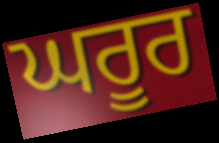
ਘਰੂਰ